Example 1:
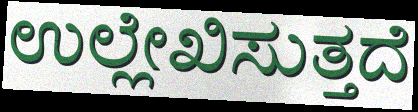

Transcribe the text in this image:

ಉಲ್ಲೇಖಿಸುತ್ತದೆ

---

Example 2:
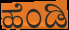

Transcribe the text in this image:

ಹೆಂಡಿ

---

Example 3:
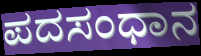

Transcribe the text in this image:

ಪದಸಂಧಾನ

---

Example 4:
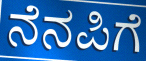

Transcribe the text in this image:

ನೆನಪಿಗೆ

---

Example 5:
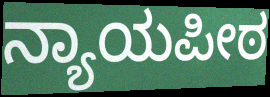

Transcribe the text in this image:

ನ್ಯಾಯಪೀಠ